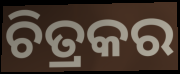
ଚିତ୍ରକର